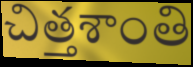
చిత్తశాంతి